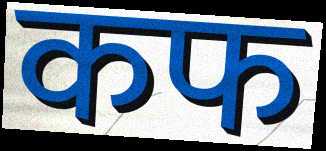
कफ